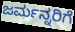
ಜರ್ಮನ್ನರಿಗೆ